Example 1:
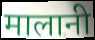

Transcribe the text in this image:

मालानी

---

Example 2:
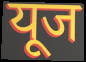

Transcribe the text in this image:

यूज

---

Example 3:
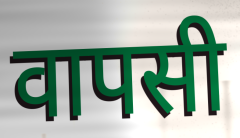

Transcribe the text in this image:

वापसी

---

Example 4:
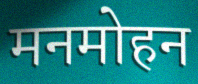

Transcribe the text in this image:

मनमोहन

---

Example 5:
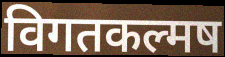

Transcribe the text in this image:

विगतकल्मष